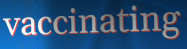
vaccinating